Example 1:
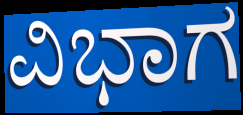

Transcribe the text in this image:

ವಿಭಾಗ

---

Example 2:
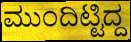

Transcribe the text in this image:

ಮುಂದಿಟ್ಟಿದ್ದ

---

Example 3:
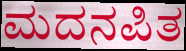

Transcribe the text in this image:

ಮದನಪಿತ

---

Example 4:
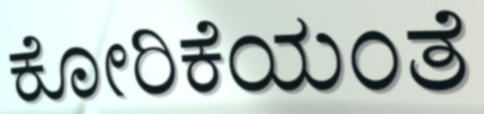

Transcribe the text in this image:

ಕೋರಿಕೆಯಂತೆ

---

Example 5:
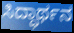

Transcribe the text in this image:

ಸಿದ್ಧಾರ್ಥನ